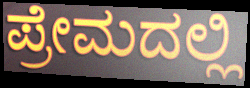
ಪ್ರೇಮದಲ್ಲಿ